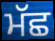
ਮੱਛ